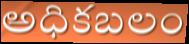
అధికబలం